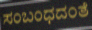
ಸಂಬಂಧದಂತೆ